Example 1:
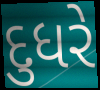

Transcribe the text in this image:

દુધરે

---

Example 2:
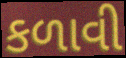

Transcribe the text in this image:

કળાવી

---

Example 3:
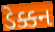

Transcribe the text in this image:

ડેક્કન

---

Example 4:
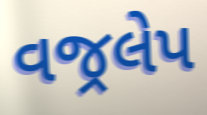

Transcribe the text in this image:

વજ્રલેપ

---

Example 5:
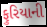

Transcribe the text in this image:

ફુરિયાની